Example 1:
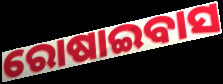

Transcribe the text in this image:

ରୋଷାଇବାସ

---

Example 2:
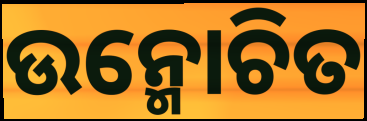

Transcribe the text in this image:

ଉନ୍ମୋଚିତ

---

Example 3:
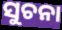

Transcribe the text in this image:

ସୁଚନା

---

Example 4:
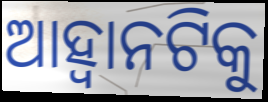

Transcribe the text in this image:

ଆହ୍ଵାନଟିକୁ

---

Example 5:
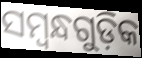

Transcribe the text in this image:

ସମ୍ବନ୍ଧଗୁଡ଼ିକ